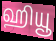
ஹியூ